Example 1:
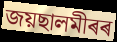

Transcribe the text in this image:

জয়ছালমীৰৰ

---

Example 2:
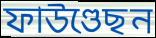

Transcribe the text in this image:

ফাউণ্ডেছন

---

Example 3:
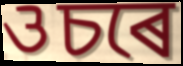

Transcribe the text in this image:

ওচৰে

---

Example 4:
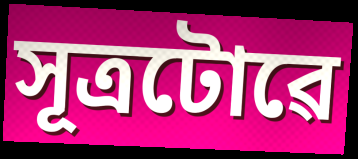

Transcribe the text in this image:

সূত্ৰটোৱে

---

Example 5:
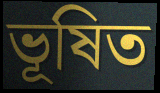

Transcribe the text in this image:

ভূষিত